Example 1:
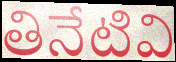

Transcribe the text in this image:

తినేటివి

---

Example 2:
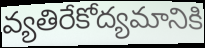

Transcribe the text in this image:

వ్యతిరేకోద్యమానికి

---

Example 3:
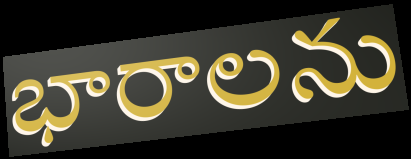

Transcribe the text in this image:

భారాలను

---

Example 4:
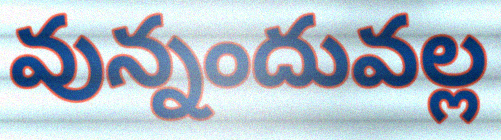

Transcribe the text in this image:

వున్నందువల్ల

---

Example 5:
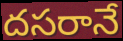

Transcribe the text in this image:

దసరానే